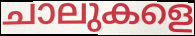
ചാലുകളെ